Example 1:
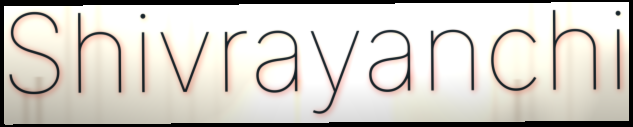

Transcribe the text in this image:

Shivrayanchi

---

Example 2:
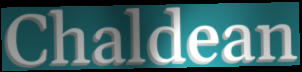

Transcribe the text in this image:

Chaldean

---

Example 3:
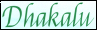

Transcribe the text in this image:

Dhakalu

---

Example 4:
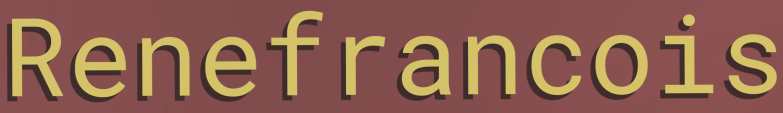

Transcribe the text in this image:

Renefrancois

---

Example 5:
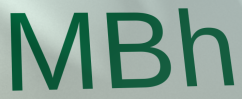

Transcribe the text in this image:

MBh